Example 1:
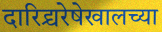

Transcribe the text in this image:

दारिद्र्यरेषेखालच्या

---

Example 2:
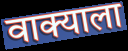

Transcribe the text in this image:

वाक्‍याला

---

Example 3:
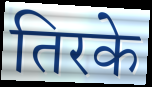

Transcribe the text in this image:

तिरके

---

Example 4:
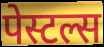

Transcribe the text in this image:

पेस्टल्स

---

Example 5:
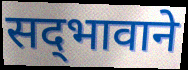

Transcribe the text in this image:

सद्‌भावाने